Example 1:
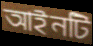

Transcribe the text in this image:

আইনটি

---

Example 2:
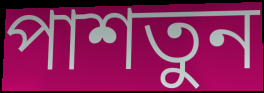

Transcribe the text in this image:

পাশতুন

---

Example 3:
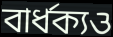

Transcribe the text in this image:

বার্ধক্যও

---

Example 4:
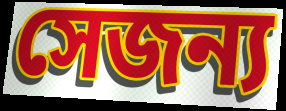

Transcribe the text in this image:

সেজন্য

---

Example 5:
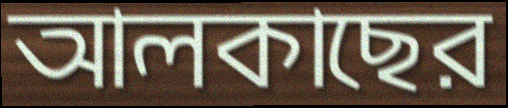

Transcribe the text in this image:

আলকাছের